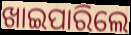
ଖାଇପାରିଲେ